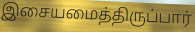
இசையமைத்திருப்பார்